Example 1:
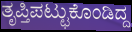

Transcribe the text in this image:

ತೃಪ್ತಿಪಟ್ಟುಕೊಂಡಿದ್ದ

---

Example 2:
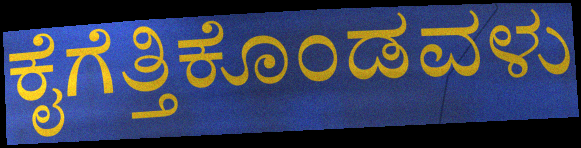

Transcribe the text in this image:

ಕೈಗೆತ್ತಿಕೊಂಡವಳು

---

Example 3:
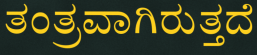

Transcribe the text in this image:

ತಂತ್ರವಾಗಿರುತ್ತದೆ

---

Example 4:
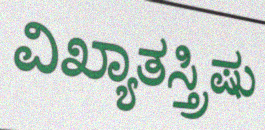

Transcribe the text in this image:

ವಿಖ್ಯಾತಸ್ತ್ರಿಷು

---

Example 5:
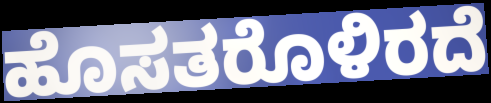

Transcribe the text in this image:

ಹೊಸತರೊಳಿರದೆ